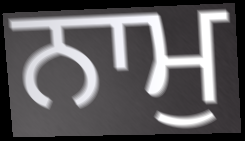
ਨਾਮੁ